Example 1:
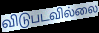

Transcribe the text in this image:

விடுபடவில்லை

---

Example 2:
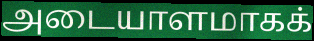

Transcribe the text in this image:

அடையாளமாகக்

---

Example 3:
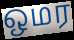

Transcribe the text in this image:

ஒமர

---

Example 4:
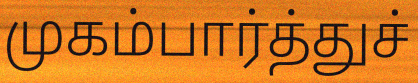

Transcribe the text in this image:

முகம்பார்த்துச்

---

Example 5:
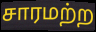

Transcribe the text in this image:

சாரமற்ற